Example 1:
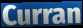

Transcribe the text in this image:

Curran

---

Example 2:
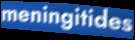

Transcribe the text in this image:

meningitides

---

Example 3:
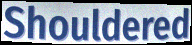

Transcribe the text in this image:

Shouldered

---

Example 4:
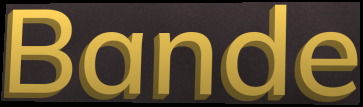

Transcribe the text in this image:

Bande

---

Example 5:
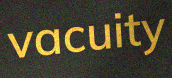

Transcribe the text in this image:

vacuity